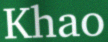
Khao